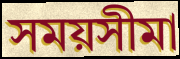
সময়সীমা